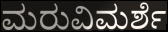
ಮರುವಿಮರ್ಶೆ